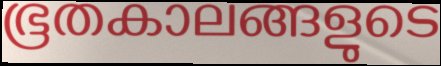
ഭൂതകാലങ്ങളുടെ